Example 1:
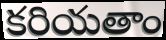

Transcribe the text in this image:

కరియతాం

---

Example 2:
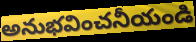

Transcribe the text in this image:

అనుభవించనీయండి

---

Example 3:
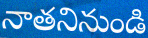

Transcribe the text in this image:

నాతనినుండి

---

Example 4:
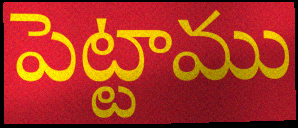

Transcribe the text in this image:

పెట్టాము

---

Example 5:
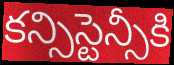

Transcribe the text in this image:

కన్సిస్టెన్సీకి